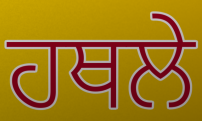
ਹਥਲੇ